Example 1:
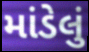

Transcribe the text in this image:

માંડેલું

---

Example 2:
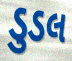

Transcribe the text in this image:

ડુડલ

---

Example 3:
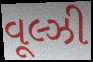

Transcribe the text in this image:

વૂલ્ઝી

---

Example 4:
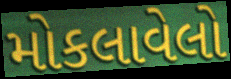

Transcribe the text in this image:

મોકલાવેલો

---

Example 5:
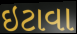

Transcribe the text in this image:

ઇટાવા